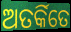
ଅତର୍କିତେ